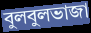
বুলবুলভাজা